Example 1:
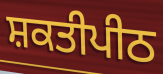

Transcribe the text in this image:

ਸ਼ਕਤੀਪੀਠ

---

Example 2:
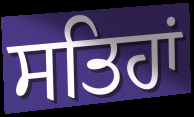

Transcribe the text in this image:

ਸਤਿਹਾਂ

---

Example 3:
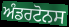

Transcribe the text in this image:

ਅੰਡਰਟੋਨਸ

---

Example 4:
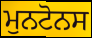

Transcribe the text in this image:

ਮੁਨਟੋਨਸ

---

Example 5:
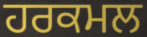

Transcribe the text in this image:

ਹਰਕਮਲ